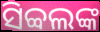
ସିବ୍ବଲଙ୍କ